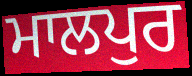
ਮਾਲਪੁਰ